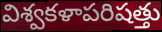
విశ్వకళాపరిషత్తు